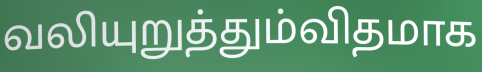
வலியுறுத்தும்விதமாக